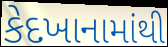
કેદખાનામાંથી